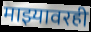
माझ्यावरही